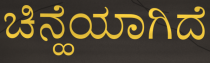
ಚಿನ್ಹೆಯಾಗಿದೆ